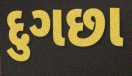
દુગછા